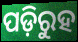
ପଡ଼ିରୁହ